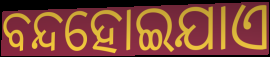
ବନ୍ଦହୋଇଯାଏ